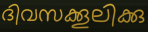
ദിവസക്കൂലിക്കു